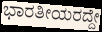
ಭಾರತೀಯರದ್ದೇ